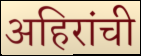
अहिरांची